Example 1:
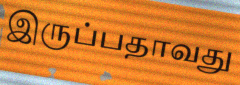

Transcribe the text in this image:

இருப்பதாவது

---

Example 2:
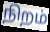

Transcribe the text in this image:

நிறம்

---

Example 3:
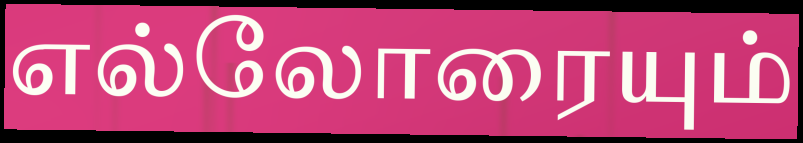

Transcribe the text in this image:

எல்லோரையும்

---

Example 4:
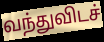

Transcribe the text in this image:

வந்துவிடச்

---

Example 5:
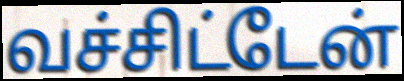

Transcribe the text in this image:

வச்சிட்டேன்